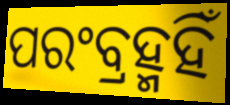
ପରଂବ୍ରହ୍ମହିଁ